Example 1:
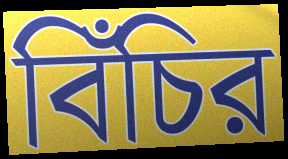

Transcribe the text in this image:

বিঁচির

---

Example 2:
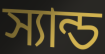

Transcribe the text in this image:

স্যান্ড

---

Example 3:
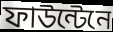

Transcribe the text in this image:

ফাউন্টেনে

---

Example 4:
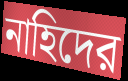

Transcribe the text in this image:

নাহিদের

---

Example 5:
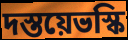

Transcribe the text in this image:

দস্তয়েভস্কি